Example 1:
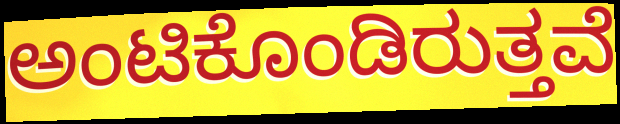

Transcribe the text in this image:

ಅಂಟಿಕೊಂಡಿರುತ್ತವೆ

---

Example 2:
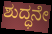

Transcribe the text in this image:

ಶುದ್ಧನೇ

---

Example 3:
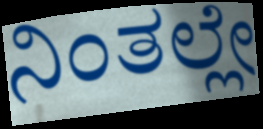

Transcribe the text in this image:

ನಿಂತಲ್ಲೇ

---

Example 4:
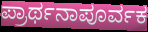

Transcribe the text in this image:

ಪ್ರಾರ್ಥನಾಪೂರ್ವಕ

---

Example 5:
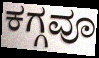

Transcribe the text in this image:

ಕಗ್ಗವೂ